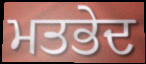
ਮਤਭੇਦ